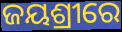
ଜୟଶ୍ରୀରେ